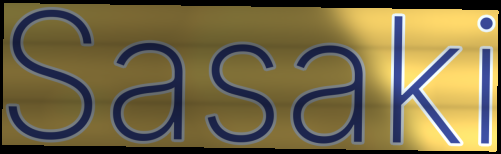
Sasaki